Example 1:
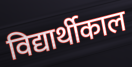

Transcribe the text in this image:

विद्यार्थीकाल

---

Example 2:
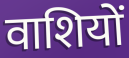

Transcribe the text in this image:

वाशियों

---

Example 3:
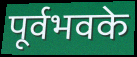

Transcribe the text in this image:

पूर्वभवके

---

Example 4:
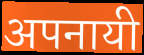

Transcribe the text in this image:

अपनायी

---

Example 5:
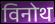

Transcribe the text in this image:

विनोथ